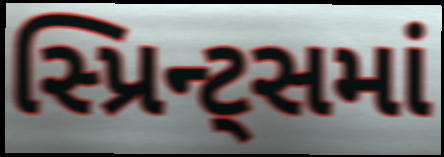
સ્પ્રિન્ટ્સમાં